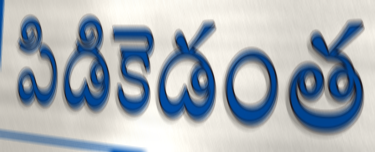
పిడికెడంత